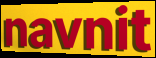
navnit